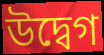
উদ্বেগ